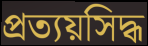
প্রত্যয়সিদ্ধ